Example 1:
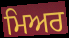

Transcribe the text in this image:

ਮਿਅਰ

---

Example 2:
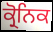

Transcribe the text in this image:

ਕ੍ਰੋਨਿਕ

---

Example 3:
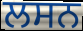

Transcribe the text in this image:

ਲਸਨ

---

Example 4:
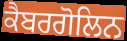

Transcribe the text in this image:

ਕੈਬਰਗੋਲਿਨ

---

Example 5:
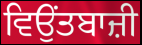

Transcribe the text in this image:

ਵਿਉਂਤਬਾਜ਼ੀ